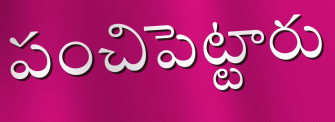
పంచిపెట్టారు